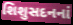
શિશુસદનનાં